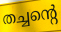
തച്ചന്റെ